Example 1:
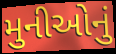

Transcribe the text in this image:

મુનીઓનું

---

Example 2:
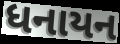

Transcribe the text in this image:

ધનાયન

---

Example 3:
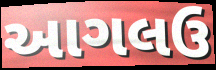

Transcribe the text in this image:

આગલઉ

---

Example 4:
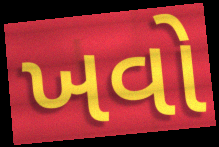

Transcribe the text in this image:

ખવો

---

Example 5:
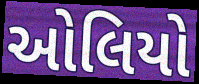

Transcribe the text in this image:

ઓલિયો